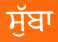
ਸੁੱਬਾ